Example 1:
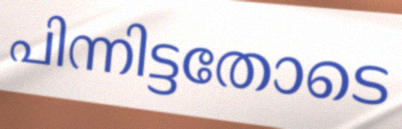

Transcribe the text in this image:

പിന്നിട്ടതോടെ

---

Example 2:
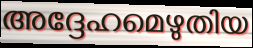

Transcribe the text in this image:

അദ്ദേഹമെഴുതിയ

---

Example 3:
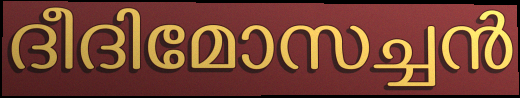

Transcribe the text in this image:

ദീദിമോസച്ചൻ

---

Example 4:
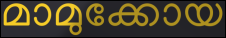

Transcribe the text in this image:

മാമുക്കോയ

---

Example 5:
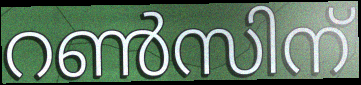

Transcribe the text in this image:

റൺസിന്